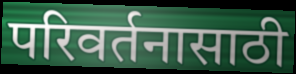
परिवर्तनासाठी